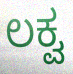
ಲಕ್ವ